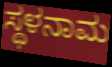
ಸ್ಥಳನಾಮ